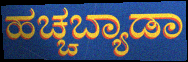
ಹಚ್ಚಬ್ಯಾಡಾ